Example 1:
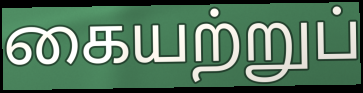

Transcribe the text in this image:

கையற்றுப்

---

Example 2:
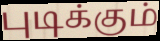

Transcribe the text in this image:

புடிக்கும்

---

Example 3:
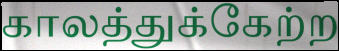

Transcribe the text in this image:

காலத்துக்கேற்ற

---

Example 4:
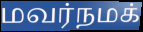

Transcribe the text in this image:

மவர்நமக்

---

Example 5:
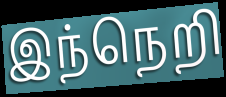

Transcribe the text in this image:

இந்நெறி